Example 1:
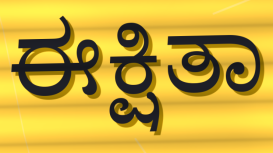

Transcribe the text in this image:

ಈಕ್ಷಿತಾ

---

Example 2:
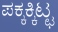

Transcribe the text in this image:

ಪಕ್ಕಕ್ಕಿಟ್ಟ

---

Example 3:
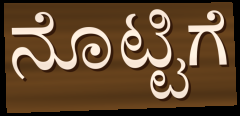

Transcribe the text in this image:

ನೊಟ್ಟಿಗೆ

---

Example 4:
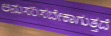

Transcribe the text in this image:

ಅನುಸರಿಸಬೇಕಾಗುತ್ತದೆ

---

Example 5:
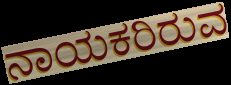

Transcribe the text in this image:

ನಾಯಕರಿರುವ